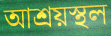
আশ্রয়স্থল